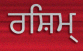
ਰਸ਼ਿਮ੍